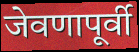
जेवणापूर्वी